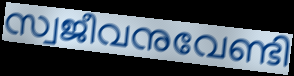
സ്വജീവനുവേണ്ടി